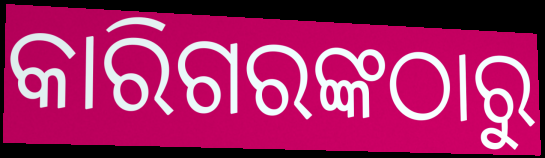
କାରିଗରଙ୍କଠାରୁ